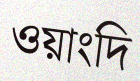
ওয়াংদি